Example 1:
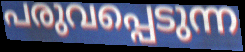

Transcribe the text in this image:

പരുവപ്പെടുന്ന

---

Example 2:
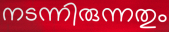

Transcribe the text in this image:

നടന്നിരുന്നതും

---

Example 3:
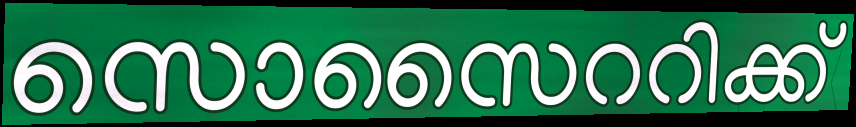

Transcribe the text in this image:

സൊസൈററിക്ക്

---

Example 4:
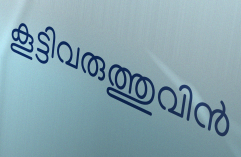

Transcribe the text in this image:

കൂട്ടിവരുത്തുവിൻ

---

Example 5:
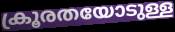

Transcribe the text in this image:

ക്രൂരതയോടുള്ള